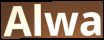
Alwa